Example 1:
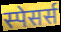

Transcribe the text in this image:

स्पेसर्स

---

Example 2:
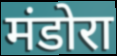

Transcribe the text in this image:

मंडोरा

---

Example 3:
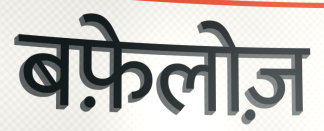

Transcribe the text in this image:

बफ़ेलोज़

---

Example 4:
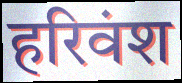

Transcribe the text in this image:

हरिवंश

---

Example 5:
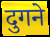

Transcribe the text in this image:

दुगने